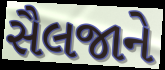
સૈલજાને